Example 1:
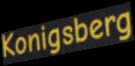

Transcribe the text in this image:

Konigsberg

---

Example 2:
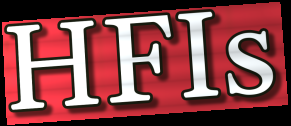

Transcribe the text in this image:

HFIs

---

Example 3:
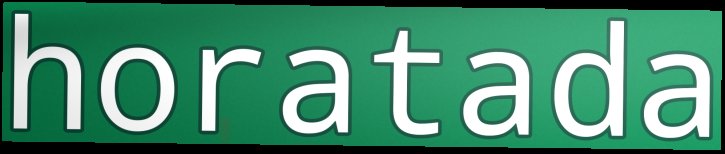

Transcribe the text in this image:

horatada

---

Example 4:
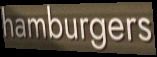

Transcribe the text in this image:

hamburgers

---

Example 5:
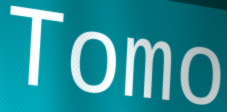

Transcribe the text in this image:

Tomo